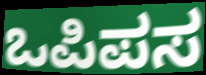
ಒಪಿಪಸ